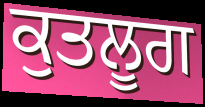
ਕੁਤਲੂਗ